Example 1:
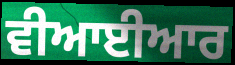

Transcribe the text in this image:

ਵੀਆਈਆਰ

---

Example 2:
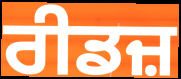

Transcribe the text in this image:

ਰੀਡਜ਼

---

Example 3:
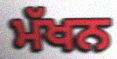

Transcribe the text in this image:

ਮੱਖਨ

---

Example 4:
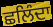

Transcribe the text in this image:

ਛਲਿੰਦਾ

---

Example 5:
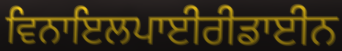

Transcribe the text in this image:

ਵਿਨਾਇਲਪਾਈਰੀਡਾਈਨ